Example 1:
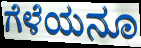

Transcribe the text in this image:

ಗೆಳೆಯನೂ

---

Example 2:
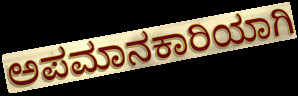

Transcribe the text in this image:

ಅಪಮಾನಕಾರಿಯಾಗಿ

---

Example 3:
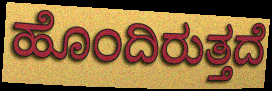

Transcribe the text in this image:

ಹೊಂದಿರುತ್ತದೆ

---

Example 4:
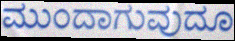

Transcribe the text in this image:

ಮುಂದಾಗುವುದೂ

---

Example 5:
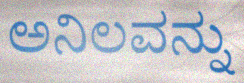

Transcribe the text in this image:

ಅನಿಲವನ್ನು